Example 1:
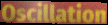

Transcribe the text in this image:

Oscillation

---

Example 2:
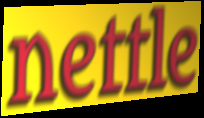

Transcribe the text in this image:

nettle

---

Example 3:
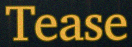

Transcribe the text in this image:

Tease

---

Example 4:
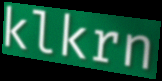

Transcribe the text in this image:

klkrn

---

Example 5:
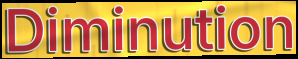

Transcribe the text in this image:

Diminution